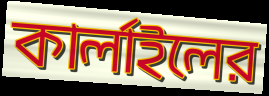
কার্লাইলের